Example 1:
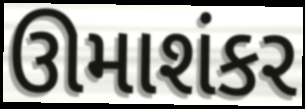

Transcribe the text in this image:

ઊમાશંકર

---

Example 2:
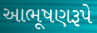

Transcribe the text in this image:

આભૂષણરૂપે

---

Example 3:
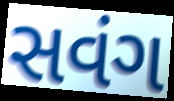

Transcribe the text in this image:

સવંગ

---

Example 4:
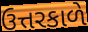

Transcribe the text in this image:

ઉત્તરકાળે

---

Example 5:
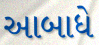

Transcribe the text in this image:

આબાધે